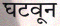
घटवून